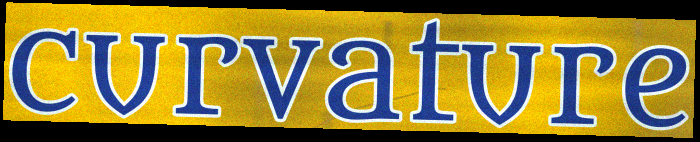
curvature